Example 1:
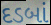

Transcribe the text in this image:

દડબાં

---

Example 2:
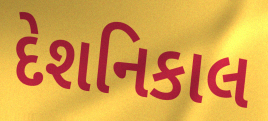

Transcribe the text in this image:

દેશનિકાલ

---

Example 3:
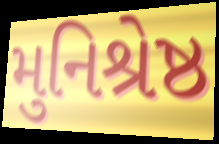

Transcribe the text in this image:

મુનિશ્રેષ્ઠ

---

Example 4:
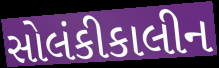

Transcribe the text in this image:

સોલંકીકાલીન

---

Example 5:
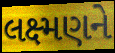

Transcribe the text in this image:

લક્ષ્મણને